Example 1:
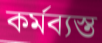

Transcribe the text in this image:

কর্মব্যস্ত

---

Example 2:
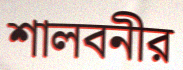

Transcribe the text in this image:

শালবনীর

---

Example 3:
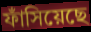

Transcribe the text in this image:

ফাঁসিয়েছে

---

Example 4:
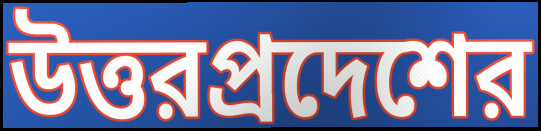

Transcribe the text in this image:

উত্তরপ্রদেশের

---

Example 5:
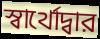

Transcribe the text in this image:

স্বার্থোদ্বার